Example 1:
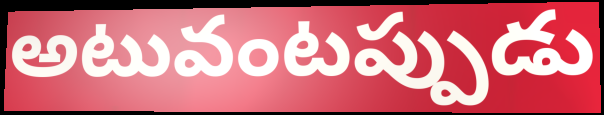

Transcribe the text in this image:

అటువంటప్పుడు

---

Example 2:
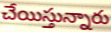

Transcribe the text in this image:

చేయిస్తున్నారు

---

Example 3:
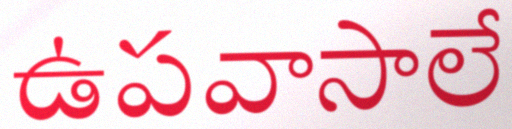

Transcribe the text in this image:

ఉపవాసాలే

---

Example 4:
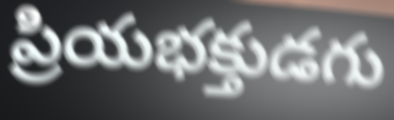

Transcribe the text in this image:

ప్రియభక్తుడగు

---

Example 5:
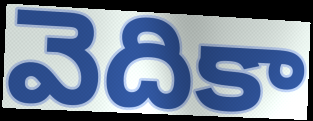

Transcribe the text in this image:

వెదికా